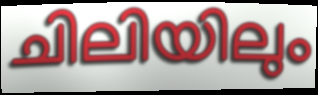
ചിലിയിലും